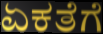
ಏಕತೆಗೆ